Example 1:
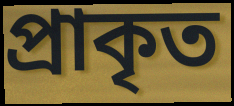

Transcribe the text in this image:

প্রাকৃত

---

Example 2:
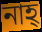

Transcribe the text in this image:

নাহ্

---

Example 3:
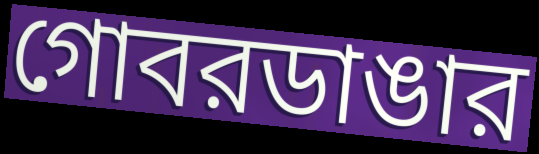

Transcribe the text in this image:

গোবরডাঙার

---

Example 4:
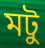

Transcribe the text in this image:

মটু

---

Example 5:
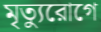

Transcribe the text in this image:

মৃত্যুরোগে